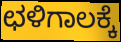
ಛಳಿಗಾಲಕ್ಕೆ